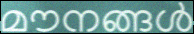
മൗനങ്ങൾ